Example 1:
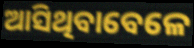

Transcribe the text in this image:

ଆସିଥିବାବେଳେ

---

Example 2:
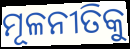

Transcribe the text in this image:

ମୂଳନୀତିକୁ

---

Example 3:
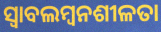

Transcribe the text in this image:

ସ୍ୱାବଲମ୍ୱନଶୀଳତା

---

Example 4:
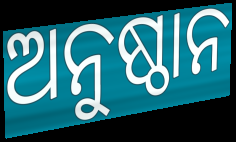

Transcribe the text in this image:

ଅନୁଷ୍ଠାନ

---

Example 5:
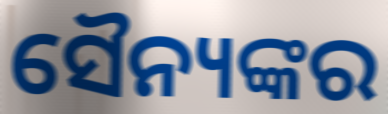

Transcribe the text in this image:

ସୈନ୍ୟଙ୍କର